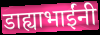
डाह्याभाईंनी